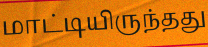
மாட்டியிருந்தது